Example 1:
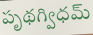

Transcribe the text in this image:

పృథగ్విధమ్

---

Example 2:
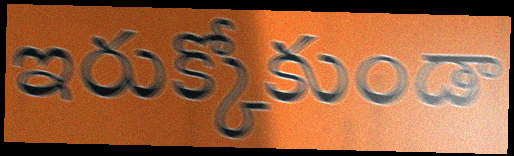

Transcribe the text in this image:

ఇరుక్కోకుండా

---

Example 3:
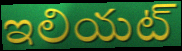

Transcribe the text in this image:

ఇలియట్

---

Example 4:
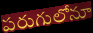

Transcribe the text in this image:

పరుగులోనూ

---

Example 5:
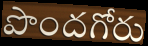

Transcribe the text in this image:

పొందగోరు